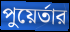
পুয়ের্তার